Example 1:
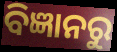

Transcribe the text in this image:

ବିଜ୍ଞାନରୁ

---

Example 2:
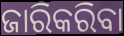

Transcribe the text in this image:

ଜାରିକରିବା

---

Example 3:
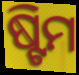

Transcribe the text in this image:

ଷ୍ଟିମ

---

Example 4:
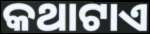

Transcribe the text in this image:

କଥାଟାଏ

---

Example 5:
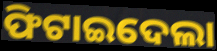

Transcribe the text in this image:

ଫିଟାଇଦେଲା